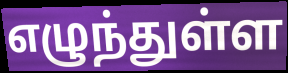
எழுந்துள்ள